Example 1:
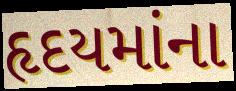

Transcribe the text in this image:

હૃદયમાંના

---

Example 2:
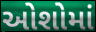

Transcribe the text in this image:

ઓશોમાં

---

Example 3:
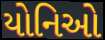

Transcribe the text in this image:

યોનિઓ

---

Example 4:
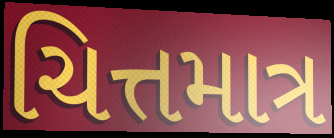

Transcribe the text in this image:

ચિત્તમાત્ર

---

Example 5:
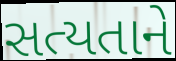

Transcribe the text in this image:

સત્યતાને